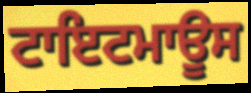
ਟਾਇਟਮਾਊਸ